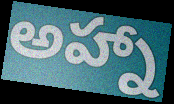
అహ్నా